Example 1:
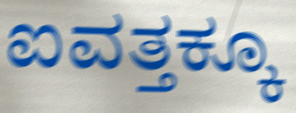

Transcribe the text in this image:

ಐವತ್ತಕ್ಕೂ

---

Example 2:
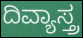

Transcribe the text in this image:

ದಿವ್ಯಾಸ್ತ್ರ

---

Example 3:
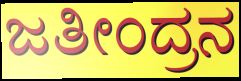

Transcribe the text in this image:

ಜತೀಂದ್ರನ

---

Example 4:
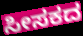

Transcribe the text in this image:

ಸೀಸಕದ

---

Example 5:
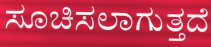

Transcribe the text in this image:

ಸೂಚಿಸಲಾಗುತ್ತದೆ